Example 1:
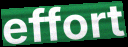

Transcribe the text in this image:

effort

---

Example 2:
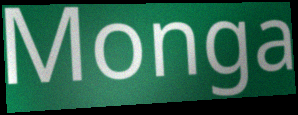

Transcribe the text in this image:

Monga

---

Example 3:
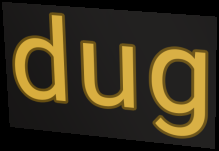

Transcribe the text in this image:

dug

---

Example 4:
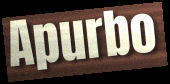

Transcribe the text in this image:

Apurbo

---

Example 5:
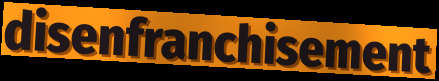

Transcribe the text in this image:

disenfranchisement